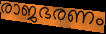
രാജഭരണം